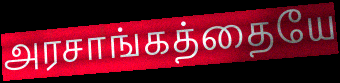
அரசாங்கத்தையே